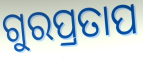
ଗୁରପ୍ରତାପ